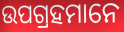
ଉପଗ୍ରହମାନେ